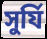
সুর্যি